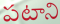
పటాని